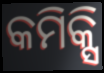
କମିକ୍ସି